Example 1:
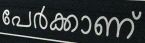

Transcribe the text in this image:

പേർക്കാണ്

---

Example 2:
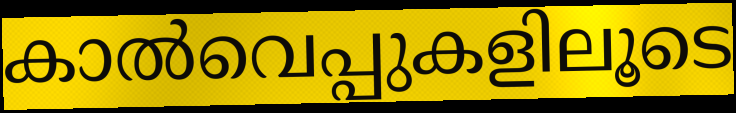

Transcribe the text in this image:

കാൽവെപ്പുകളിലൂടെ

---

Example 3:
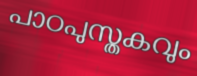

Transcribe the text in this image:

പാഠപുസ്തകവും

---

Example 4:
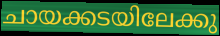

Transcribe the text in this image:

ചായക്കടയിലേക്കു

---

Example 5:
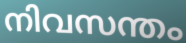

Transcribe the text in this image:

നിവസന്തം